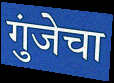
गुंजेचा